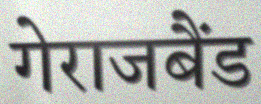
गेराजबैंड